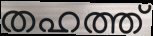
തഹത്ത്